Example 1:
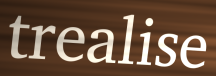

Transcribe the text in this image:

trealise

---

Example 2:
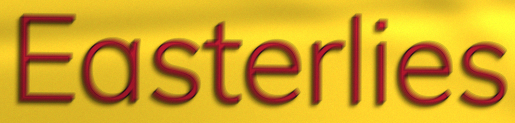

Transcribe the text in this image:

Easterlies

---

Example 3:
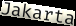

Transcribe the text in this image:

Jakarta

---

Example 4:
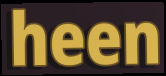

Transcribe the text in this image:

heen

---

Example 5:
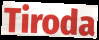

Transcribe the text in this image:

Tiroda